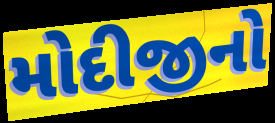
મોદીજીનો